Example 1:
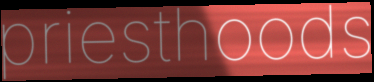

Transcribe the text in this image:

priesthoods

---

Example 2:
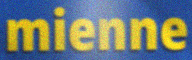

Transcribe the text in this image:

mienne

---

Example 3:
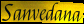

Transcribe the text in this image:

Sanvedana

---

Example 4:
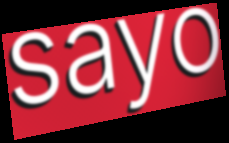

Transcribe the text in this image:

sayo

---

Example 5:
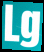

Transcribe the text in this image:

Lg